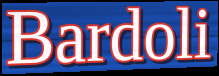
Bardoli